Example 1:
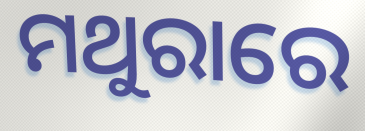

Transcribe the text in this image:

ମଥୁରାରେ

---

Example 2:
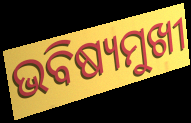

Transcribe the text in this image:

ଭବିଷ୍ୟମୁଖୀ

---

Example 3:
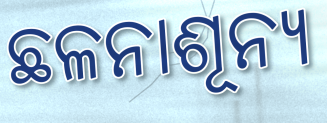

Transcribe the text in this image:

ଛଳନାଶୂନ୍ୟ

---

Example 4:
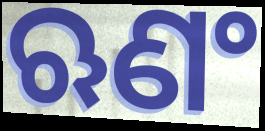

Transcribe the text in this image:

ଋଣଂ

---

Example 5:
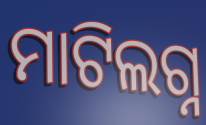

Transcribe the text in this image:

ମାଟିଲଗ୍ନ